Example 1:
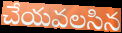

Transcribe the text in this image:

చేయవలసిన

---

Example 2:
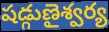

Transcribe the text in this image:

షడ్గుణైశ్వర్య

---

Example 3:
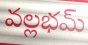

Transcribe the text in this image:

వల్లభమ్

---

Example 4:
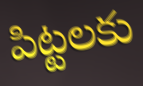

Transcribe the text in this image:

పిట్టలకు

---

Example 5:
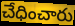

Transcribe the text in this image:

చేధించారు